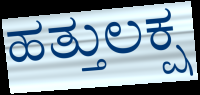
ಹತ್ತುಲಕ್ಷ